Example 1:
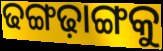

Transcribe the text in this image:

ଢଙ୍ଗଢ଼ାଙ୍ଗକୁ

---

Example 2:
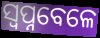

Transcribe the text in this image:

ସ୍ଵପ୍ନବେଳେ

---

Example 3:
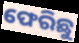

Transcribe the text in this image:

ଫେରିଛୁ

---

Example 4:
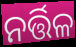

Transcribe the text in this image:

ନର୍ତ୍ତିଳ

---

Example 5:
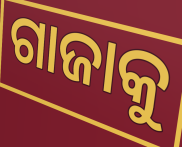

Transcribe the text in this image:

ଗାଜାକୁ